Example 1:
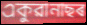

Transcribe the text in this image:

একুৱানাছৰ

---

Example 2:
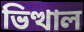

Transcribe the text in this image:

ভিত্থাল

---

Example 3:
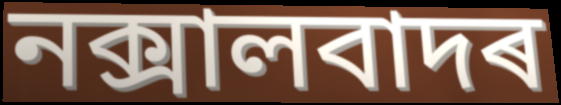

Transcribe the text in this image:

নক্সালবাদৰ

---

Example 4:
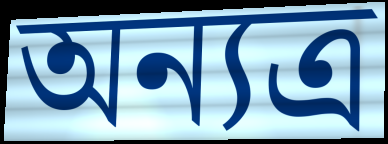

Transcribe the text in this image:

অন্যত্ৰ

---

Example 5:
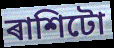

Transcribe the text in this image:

ৰাশিটো